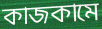
কাজকামে